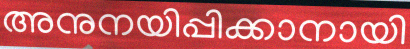
അനുനയിപ്പിക്കാനായി